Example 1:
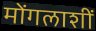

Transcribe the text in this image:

मोंगलाशीं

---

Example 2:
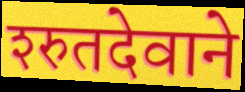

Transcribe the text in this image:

श्रुतदेवाने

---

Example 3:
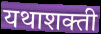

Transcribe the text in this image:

यथाशक्‍ती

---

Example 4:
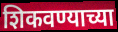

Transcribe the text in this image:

शिकवण्याच्या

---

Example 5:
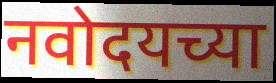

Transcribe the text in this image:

नवोदयच्या